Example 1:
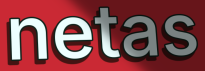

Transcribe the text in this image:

netas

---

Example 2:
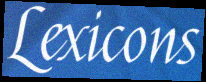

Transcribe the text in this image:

Lexicons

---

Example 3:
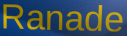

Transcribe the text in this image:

Ranade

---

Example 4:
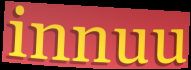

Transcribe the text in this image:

innuu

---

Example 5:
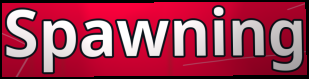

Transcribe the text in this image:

Spawning